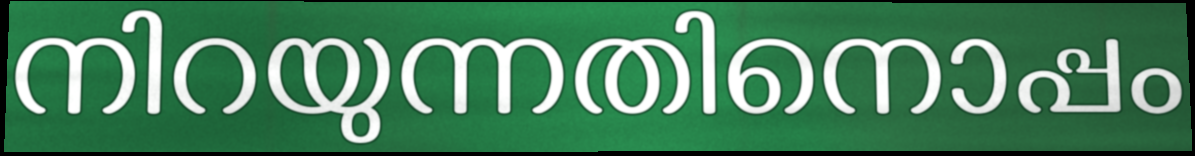
നിറയുന്നതിനൊപ്പം